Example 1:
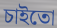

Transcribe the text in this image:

চাইতো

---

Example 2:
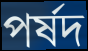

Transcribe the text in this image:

পর্ষদ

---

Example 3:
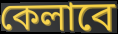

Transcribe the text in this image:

কেলাবে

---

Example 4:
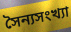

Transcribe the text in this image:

সৈন্যসংখ্যা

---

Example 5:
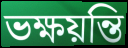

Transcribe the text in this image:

ভক্ষয়ন্তি